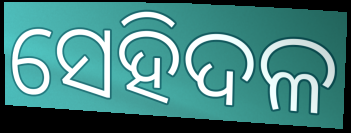
ସେହିଦଳ